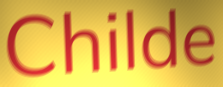
Childe